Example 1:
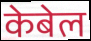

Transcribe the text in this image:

केबेल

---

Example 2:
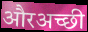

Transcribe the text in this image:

औरअच्छी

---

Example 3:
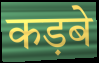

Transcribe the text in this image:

कड़बे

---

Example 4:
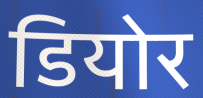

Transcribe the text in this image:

डियोर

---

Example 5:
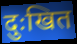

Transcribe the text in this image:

दुःखित